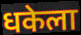
धकेला